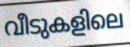
വീടുകളിലെ